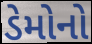
ડેમોનો